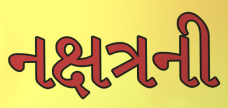
નક્ષત્રની